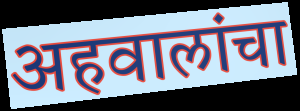
अहवालांचा